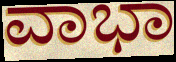
ವಾಭಾ